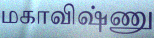
மகாவிஷ்ணு